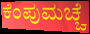
ಕೆಂಪುಮಚ್ಚೆ